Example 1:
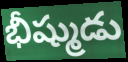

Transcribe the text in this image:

భీష్ముడు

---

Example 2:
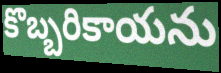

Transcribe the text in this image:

కొబ్బరికాయను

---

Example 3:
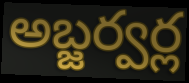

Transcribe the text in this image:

అబ్జర్వర్ల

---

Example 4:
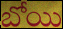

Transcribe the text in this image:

బోయి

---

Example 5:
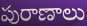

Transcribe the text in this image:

పురాణాలు